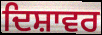
ਦਿਸ਼ਾਵਰ